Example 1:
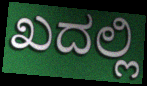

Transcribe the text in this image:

ಖದಲ್ಲಿ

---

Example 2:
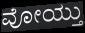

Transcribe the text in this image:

ವೋಯ್ತು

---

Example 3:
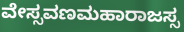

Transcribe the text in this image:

ವೇಸ್ಸವಣಮಹಾರಾಜಸ್ಸ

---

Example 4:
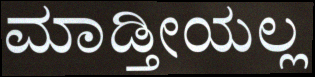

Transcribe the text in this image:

ಮಾಡ್ತೀಯಲ್ಲ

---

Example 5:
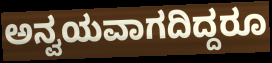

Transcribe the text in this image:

ಅನ್ವಯವಾಗದಿದ್ದರೂ